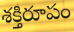
శక్తిరూపం